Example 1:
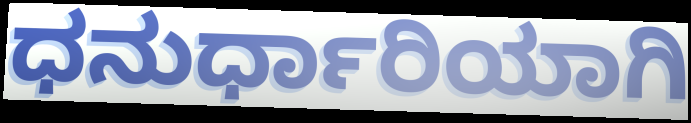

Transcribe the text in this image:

ಧನುರ್ಧಾರಿಯಾಗಿ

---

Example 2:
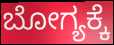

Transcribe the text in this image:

ಬೋಗ್ಯಕ್ಕೆ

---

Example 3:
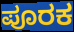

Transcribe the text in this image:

ಪೂರಕ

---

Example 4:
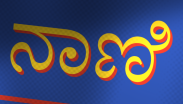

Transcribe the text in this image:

ನಾಣಿ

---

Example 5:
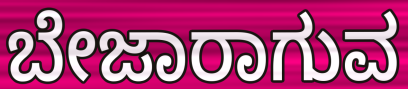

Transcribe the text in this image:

ಬೇಜಾರಾಗುವ